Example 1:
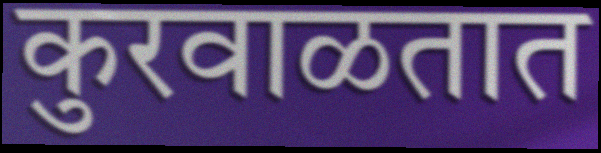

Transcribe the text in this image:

कुरवाळतात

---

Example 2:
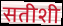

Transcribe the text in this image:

सतीशी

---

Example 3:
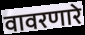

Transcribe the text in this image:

वावरणारे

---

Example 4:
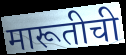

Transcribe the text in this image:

मारूतीची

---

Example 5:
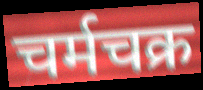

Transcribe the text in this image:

चर्मचक्र